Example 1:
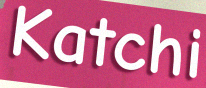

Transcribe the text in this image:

Katchi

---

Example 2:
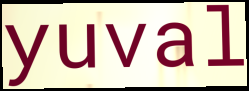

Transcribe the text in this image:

yuval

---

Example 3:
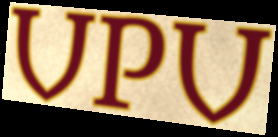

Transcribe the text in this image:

UPU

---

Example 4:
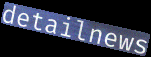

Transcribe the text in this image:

detailnews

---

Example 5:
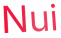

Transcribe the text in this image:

Nui